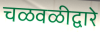
चळवळीद्वारे